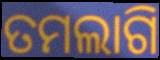
ତମଲାଗି